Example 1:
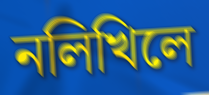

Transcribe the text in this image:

নলিখিলে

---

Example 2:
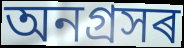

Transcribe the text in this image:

অনগ্ৰসৰ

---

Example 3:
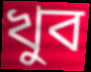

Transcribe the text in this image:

খুব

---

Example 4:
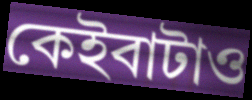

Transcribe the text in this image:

কেইবাটাও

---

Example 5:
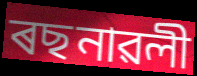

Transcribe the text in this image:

ৰছনাৱলী